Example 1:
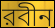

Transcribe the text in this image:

রবীন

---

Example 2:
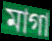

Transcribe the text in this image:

মাগা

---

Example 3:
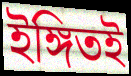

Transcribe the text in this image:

ইঙ্গিতই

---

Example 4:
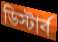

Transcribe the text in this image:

ডিস্টার্ব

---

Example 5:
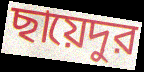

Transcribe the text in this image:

ছায়েদুর